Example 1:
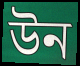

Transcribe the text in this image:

উন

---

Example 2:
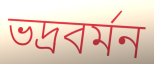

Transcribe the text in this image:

ভদ্রবর্মন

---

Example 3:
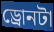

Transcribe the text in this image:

ড্রোনটা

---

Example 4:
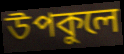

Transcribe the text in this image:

উপকুলে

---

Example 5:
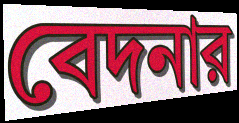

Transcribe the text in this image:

বেদনার